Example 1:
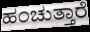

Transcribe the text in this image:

ಹಂಚುತ್ತಾರೆ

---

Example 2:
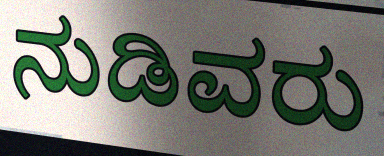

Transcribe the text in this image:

ನುಡಿವರು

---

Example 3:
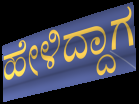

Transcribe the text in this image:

ಹೇಳಿದ್ದಾಗ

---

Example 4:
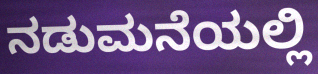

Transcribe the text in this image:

ನಡುಮನೆಯಲ್ಲಿ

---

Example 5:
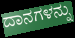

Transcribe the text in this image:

ದಾನಗಳನ್ನು